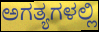
ಅಗತ್ಯಗಳಲ್ಲಿ